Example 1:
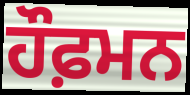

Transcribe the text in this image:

ਹੌਫ਼ਮਨ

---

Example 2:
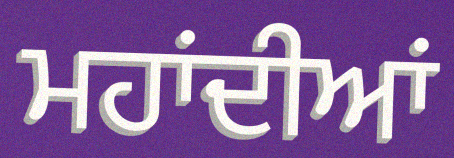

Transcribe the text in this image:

ਮਹਾਂਦੀਆਂ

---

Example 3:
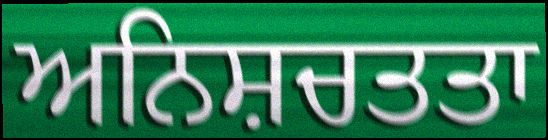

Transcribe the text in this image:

ਅਨਿਸ਼ਚਤਤਾ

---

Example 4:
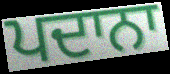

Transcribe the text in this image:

ਪਦਾਨਾ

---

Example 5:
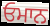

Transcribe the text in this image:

ਓਮਾਨ